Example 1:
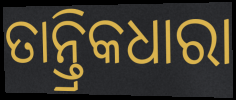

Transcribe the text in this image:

ତାନ୍ତ୍ରିକଧାରା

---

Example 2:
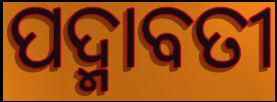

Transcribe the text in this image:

ପଦ୍ମାବତୀ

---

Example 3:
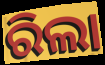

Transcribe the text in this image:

ରିଲା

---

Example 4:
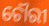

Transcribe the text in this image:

ଚୌରୀ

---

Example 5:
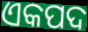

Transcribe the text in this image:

ଏକପଦ